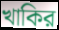
খাকির